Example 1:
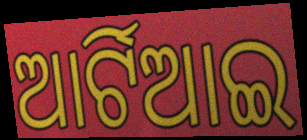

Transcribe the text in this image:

ଆର୍ଟିଆଇ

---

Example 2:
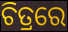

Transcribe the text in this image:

ଚିତ୍ରରେ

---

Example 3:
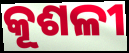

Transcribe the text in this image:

କୂଶଳୀ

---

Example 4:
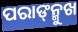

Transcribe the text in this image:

ପରାଙ୍‌ନ୍ମୁଖ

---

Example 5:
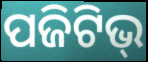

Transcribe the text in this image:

ପଜିଟିଭ୍